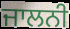
ਜਾਲਨੀ